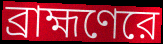
ব্রাহ্মণেরে